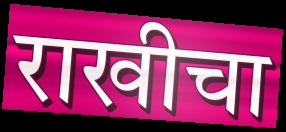
राखीचा